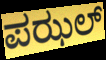
ಪಝಲ್